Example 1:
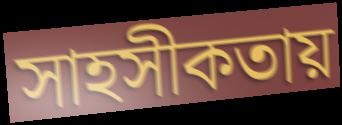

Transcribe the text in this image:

সাহসীকতায়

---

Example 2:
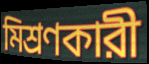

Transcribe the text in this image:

মিশ্রণকারী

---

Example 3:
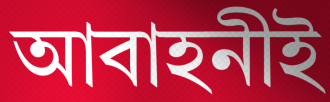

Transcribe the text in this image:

আবাহনীই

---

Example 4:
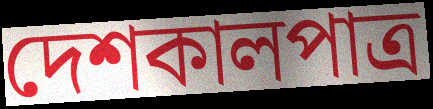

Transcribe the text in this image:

দেশকালপাত্র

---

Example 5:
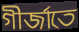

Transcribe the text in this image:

গীর্জাতে